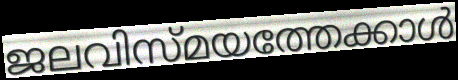
ജലവിസ്മയത്തേക്കാൾ